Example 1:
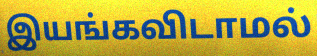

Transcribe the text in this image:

இயங்கவிடாமல்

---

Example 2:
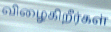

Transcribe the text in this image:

விழைகிறீர்கள்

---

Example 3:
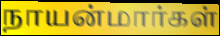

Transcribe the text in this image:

நாயன்மார்கள்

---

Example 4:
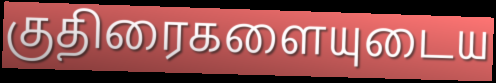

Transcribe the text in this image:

குதிரைகளையுடைய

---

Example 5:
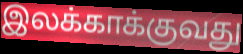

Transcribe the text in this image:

இலக்காக்குவது